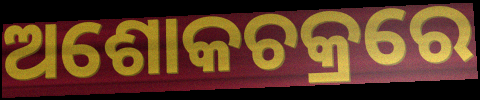
ଅଶୋକଚକ୍ରରେ